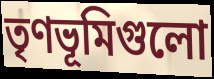
তৃণভূমিগুলো